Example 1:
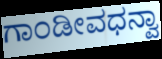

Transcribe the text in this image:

ಗಾಂಡೀವಧನ್ವಾ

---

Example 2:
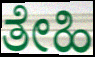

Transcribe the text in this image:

ತೇಹಿ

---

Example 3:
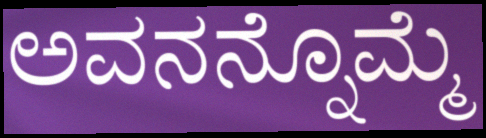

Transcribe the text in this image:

ಅವನನ್ನೊಮ್ಮೆ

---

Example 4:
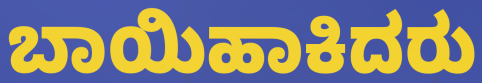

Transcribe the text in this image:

ಬಾಯಿಹಾಕಿದರು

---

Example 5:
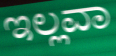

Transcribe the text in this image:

ಇಲ್ಲವಾ